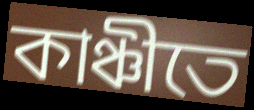
কাঞ্চীতে